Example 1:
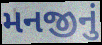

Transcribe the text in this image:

મનજીનું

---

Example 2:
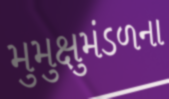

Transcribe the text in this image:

મુમુક્ષુમંડળના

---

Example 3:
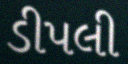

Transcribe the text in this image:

ડીપલી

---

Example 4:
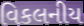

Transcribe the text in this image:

વિકલનીય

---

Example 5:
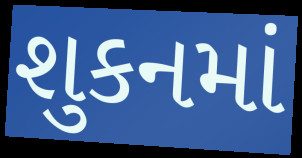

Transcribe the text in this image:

શુકનમાં